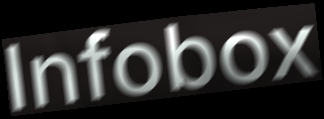
Infobox